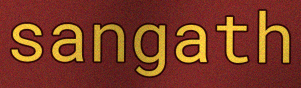
sangath